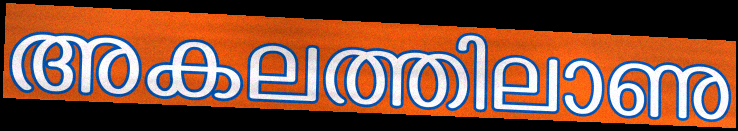
അകലത്തിലാണു